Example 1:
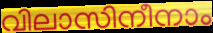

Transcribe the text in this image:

വിലാസിനീനാം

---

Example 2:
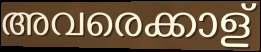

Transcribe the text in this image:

അവരെക്കാള്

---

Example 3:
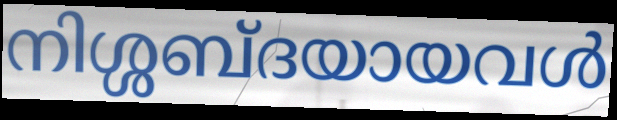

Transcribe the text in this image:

നിശ്ശബ്ദയായവൾ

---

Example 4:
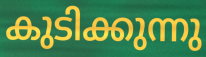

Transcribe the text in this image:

കുടിക്കുന്നു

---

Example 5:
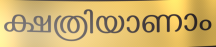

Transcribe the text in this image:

ക്ഷത്രിയാണാം